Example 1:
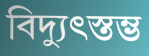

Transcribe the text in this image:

বিদ্যুৎস্তম্ভ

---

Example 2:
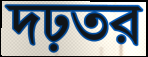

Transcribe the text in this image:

দঢ়তর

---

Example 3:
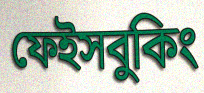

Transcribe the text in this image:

ফেইসবুকিং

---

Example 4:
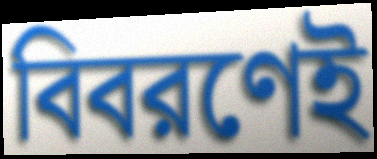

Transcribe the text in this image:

বিবরণেই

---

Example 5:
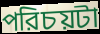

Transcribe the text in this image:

পরিচয়টা